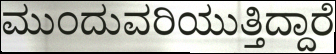
ಮುಂದುವರಿಯುತ್ತಿದ್ದಾರೆ